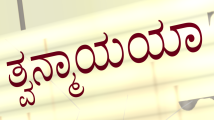
ತ್ವನ್ಮಾಯಯಾ